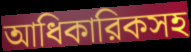
আধিকারিকসহ